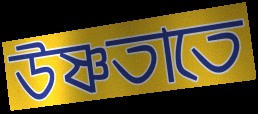
উষ্ণতাতে